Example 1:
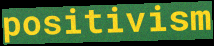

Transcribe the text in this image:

positivism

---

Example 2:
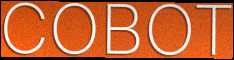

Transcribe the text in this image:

COBOT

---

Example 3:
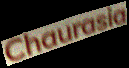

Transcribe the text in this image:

Chaurasia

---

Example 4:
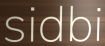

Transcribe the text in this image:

sidbi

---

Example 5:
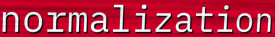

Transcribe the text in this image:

normalization